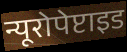
न्यूरोपेप्टाइड